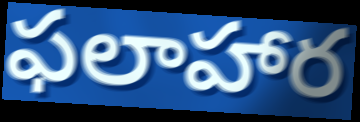
ఫలాహార